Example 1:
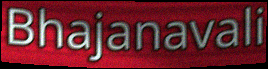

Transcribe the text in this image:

Bhajanavali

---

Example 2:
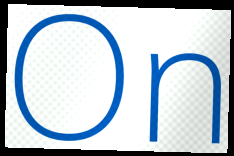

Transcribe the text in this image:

On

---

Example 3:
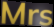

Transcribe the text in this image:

Mrs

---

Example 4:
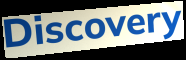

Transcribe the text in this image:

Discovery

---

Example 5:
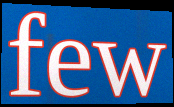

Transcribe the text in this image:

few